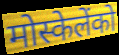
मोस्केलेंको